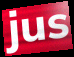
jus